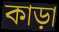
কাড়া